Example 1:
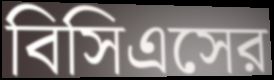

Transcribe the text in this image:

বিসিএসের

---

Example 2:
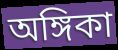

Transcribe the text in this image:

অঙ্গিকা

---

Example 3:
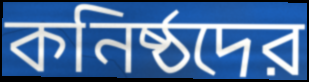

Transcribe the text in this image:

কনিষ্ঠদের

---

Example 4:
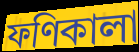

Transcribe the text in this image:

ফণিকালা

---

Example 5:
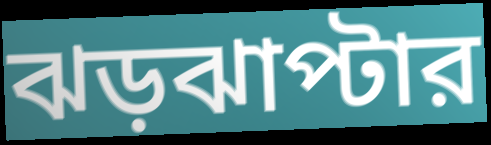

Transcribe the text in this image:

ঝড়ঝাপ্টার